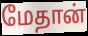
மேதான்